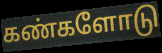
கண்களோடு